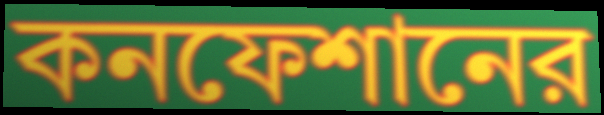
কনফেশানের